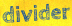
divider